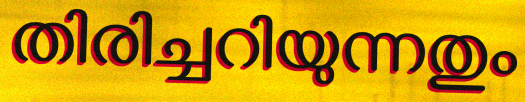
തിരിച്ചറിയുന്നതും